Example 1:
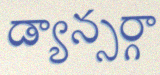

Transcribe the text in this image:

డ్యాన్సర్గా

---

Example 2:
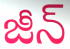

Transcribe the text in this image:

జీన్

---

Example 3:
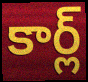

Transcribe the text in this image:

కార్ల్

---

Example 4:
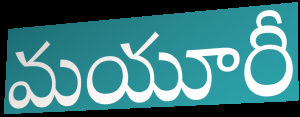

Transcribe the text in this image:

మయూరీ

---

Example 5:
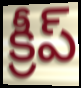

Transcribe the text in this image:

క్రీప్